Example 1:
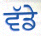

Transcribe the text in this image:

ਵੱਡੇ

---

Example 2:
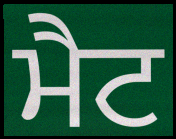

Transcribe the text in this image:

ਮੈਟ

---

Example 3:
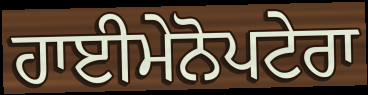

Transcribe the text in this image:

ਹਾਈਮੇਨੋਪਟੇਰਾ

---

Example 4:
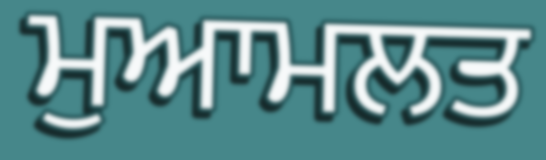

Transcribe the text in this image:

ਮੁਆਮਲਤ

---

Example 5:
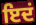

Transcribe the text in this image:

ਇਦਂ